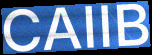
CAIIB